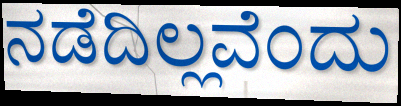
ನಡೆದಿಲ್ಲವೆಂದು